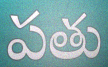
పతు